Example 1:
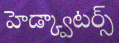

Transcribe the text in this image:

హెడ్క్వాటర్స్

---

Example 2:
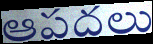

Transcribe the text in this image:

ఆపదలు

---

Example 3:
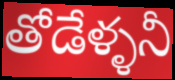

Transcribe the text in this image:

తోడేళ్ళనీ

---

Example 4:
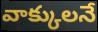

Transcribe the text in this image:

వాక్కులనే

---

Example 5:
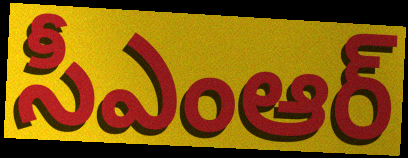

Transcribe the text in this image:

సీఎంఆర్